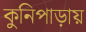
কুনিপাড়ায়